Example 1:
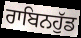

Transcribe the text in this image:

ਰਾਬਿਨਹੁੱਡ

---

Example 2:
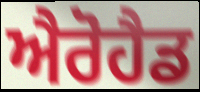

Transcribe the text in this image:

ਐਰੋਹੈਡ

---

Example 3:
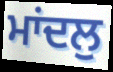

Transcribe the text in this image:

ਮਾਂਦਲੁ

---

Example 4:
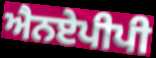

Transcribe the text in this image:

ਐਨਏਪੀਪੀ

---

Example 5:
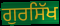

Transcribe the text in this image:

ਗੁਰਸਿੱਖ